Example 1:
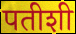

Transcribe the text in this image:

पतीशी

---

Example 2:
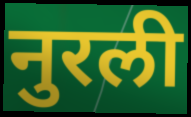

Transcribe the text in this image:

नुरली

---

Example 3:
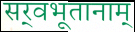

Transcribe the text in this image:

सर्वभूतानाम्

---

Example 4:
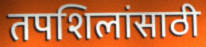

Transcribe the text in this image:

तपशिलांसाठी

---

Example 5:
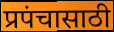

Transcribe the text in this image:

प्रपंचासाठी